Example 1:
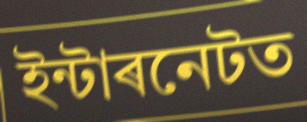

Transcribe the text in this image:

ইন্টাৰনেটত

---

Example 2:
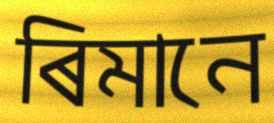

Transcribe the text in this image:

ৰিমানে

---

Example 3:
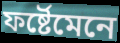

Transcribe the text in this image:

ফৰ্ষ্টেমেনে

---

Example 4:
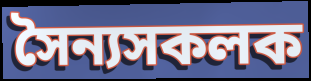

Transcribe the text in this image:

সৈন্যসকলক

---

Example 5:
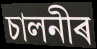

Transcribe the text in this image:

চালনীৰ